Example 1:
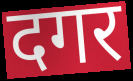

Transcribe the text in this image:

दगर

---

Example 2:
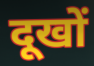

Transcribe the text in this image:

दूखों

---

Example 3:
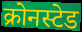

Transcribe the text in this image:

क्रोनस्टेड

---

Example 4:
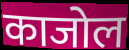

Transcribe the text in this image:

काजोल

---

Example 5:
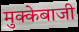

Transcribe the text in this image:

मुक्केबाजी